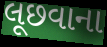
લૂછવાના